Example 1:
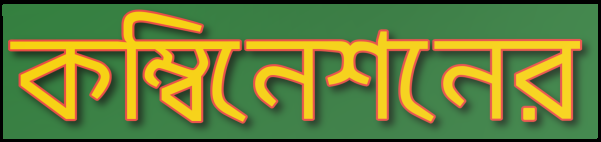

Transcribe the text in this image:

কম্বিনেশনের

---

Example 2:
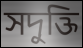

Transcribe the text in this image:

সদুক্তি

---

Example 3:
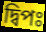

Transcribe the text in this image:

দ্বিপঃ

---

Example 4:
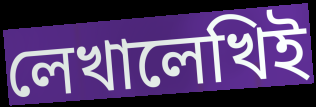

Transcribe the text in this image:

লেখালেখিই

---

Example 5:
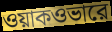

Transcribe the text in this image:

ওয়াকওভারে